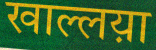
खाल्लय़ा